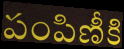
పంపిణీకి